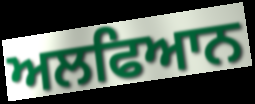
ਅਲਫਿਆਨ